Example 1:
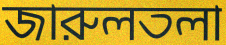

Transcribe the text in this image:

জারুলতলা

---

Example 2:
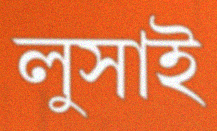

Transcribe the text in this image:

লুসাই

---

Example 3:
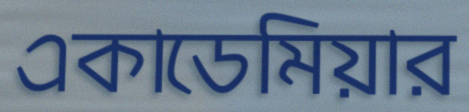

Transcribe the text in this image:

একাডেমিয়ার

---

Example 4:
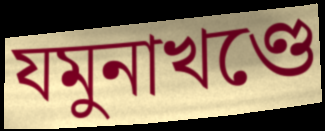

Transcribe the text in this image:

যমুনাখণ্ডে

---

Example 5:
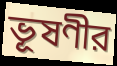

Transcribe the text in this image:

ভূষণীর